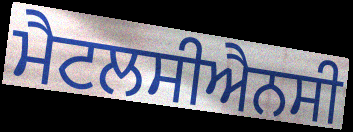
ਮੈਟਲਸੀਐਨਸੀ